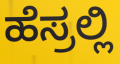
ಹೆಸ್ರಲ್ಲಿ